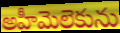
అహీమెలెకును